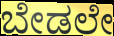
ಬೇಡಲೇ